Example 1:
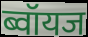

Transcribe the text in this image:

ब्वॉयज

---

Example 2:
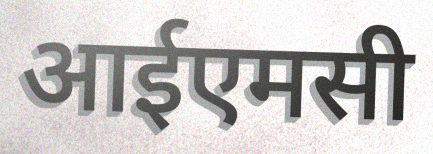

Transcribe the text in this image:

आईएमसी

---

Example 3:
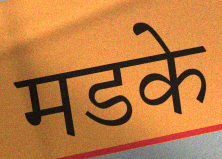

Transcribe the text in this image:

मडके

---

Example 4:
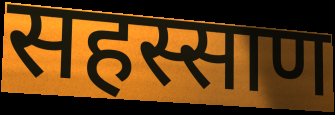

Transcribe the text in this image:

सहस्साण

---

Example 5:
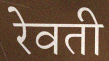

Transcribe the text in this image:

रेवती